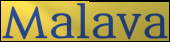
Malava